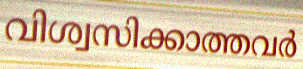
വിശ്വസിക്കാത്തവർ